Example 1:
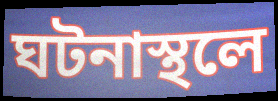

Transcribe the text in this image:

ঘটনাস্থলে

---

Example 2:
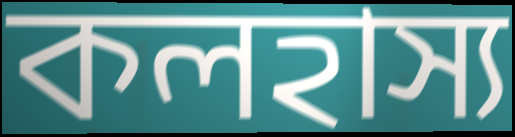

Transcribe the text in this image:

কলহাস্য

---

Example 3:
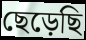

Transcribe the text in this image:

ছেড়েছি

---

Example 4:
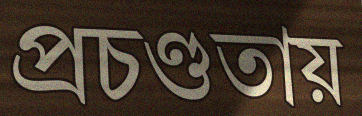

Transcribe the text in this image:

প্রচণ্ডতায়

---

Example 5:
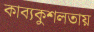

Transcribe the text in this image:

কাব্যকুশলতায়